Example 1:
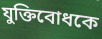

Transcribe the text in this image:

যুক্তিবোধকে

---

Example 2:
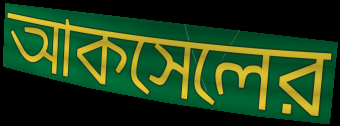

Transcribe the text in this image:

আকসেলের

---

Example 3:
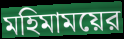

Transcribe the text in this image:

মহিমাময়ের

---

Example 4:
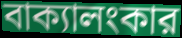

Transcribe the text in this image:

বাক্যালংকার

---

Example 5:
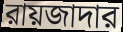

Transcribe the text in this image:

রায়জাদার